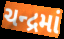
ચન્દ્રમાં